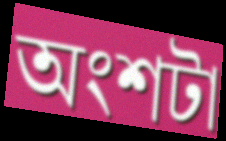
অংশটা